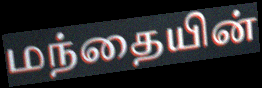
மந்தையின்